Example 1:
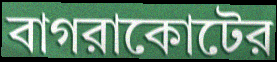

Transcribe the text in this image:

বাগরাকোটের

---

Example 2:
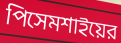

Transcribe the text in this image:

পিসেমশাইয়ের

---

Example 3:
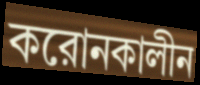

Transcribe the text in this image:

করোনকালীন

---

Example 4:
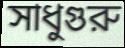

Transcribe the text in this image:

সাধুগুরু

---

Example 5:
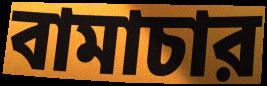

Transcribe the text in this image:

বামাচার